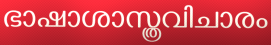
ഭാഷാശാസ്ത്രവിചാരം